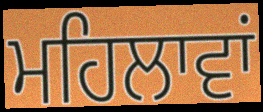
ਮਹਿਲਾਵਾਂ